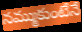
నమ్ముకుంటేనే